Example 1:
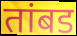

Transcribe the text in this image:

तांबड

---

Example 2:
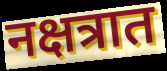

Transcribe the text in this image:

नक्षत्रात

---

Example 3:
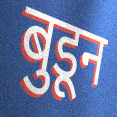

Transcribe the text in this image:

बुडून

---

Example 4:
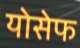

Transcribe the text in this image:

योसेफ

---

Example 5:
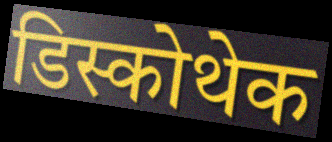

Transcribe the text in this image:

डिस्कोथेक